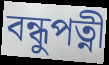
বন্ধুপত্নী